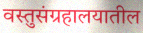
वस्तुसंग्रहालयातील